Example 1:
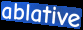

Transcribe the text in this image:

ablative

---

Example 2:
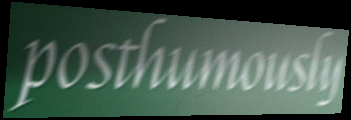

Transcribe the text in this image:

posthumously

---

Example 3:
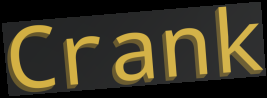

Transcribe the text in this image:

Crank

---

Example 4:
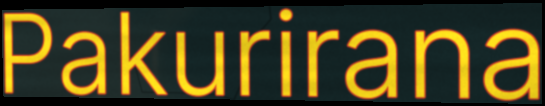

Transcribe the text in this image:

Pakurirana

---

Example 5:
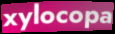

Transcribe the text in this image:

xylocopa